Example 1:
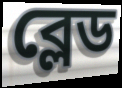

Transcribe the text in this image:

ব্লেড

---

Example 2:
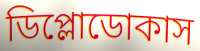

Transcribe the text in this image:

ডিপ্লোডোকাস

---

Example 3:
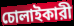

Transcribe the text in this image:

চোলাইকারী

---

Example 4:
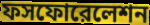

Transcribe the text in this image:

ফসফোরেলেশন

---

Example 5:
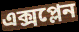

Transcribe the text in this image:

এক্সপ্লেন